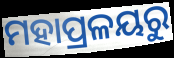
ମହାପ୍ରଳୟରୁ